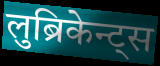
लुब्रिकेन्ट्स